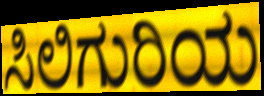
ಸಿಲಿಗುರಿಯ